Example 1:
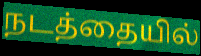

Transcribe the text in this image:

நடத்தையில்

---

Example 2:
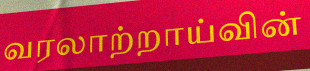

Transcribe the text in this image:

வரலாற்றாய்வின்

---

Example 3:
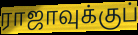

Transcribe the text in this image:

ராஜாவுக்குப்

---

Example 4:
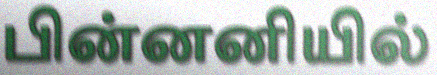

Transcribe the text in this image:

பின்னனியில்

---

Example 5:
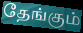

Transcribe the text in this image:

தேங்கும்